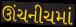
ઊંચનીચમાં